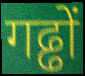
गढ्ढों